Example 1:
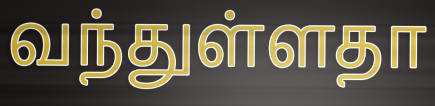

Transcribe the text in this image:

வந்துள்ளதா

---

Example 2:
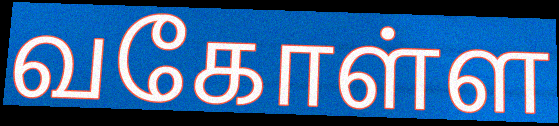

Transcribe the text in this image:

வகோள்ள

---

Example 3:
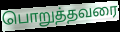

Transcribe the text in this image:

பொறுத்தவரை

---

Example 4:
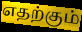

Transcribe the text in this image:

எதற்கும்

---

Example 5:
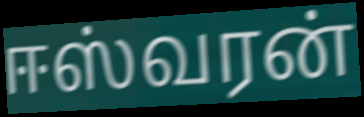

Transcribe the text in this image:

ஈஸ்வரன்